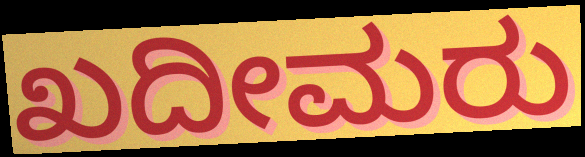
ಖದೀಮರು